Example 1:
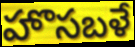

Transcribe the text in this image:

హొసబళే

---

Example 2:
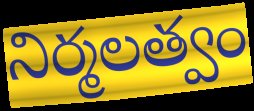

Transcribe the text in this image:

నిర్మలత్వం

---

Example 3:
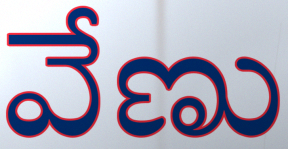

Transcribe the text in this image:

వేణు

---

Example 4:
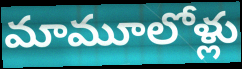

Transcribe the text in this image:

మామూలోళ్లు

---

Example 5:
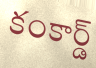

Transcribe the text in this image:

కంకార్డ్